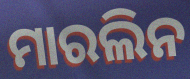
ମାରଲିନ